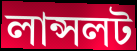
লান্সলট